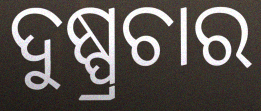
ଦୁଷ୍ପ୍ରଚାର